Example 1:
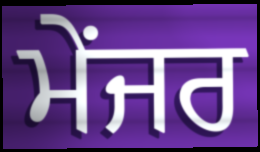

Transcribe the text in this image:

ਮੇਂਜਰ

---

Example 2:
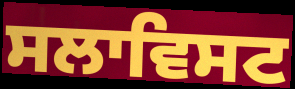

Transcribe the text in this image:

ਸਲਾਵਿਸਟ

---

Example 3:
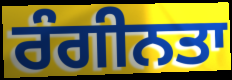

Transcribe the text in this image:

ਰੰਗੀਨਤਾ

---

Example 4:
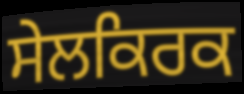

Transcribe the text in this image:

ਸੇਲਕਿਰਕ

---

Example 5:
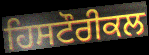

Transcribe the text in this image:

ਹਿਸਟੌਰੀਕਲ